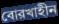
বোরখাহীন